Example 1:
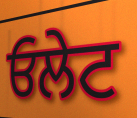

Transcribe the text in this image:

ਓਲੇਟ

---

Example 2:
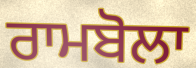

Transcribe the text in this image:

ਰਾਮਬੋਲਾ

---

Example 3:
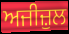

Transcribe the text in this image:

ਅਜੀਜ਼ੁਲ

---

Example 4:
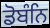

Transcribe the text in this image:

ਡੋਬੰਨਿ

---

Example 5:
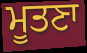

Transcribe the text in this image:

ਮੂਤਣਾ